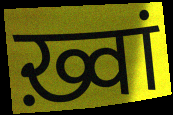
ख़्वां